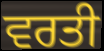
ਵਰਤੀ